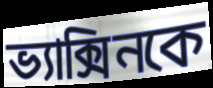
ভ্যাক্সিনকে